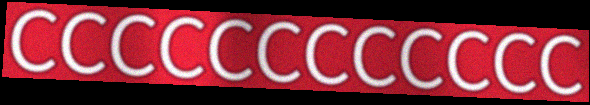
CCCCCCCCCCCC